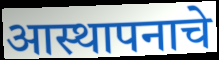
आस्थापनाचे